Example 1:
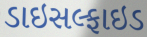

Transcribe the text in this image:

ડાઇસલ્ફાઇડ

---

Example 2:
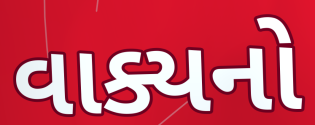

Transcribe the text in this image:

વાક્યનો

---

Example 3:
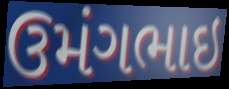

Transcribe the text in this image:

ઉમંગભાઇ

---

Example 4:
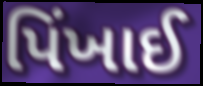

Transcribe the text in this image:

પિંખાઈ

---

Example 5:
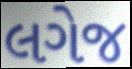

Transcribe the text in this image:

લગેજ